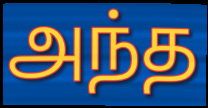
அந்த